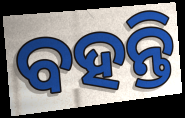
ବହନ୍ତି